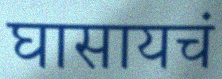
घासायचं